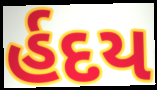
ર્હદય